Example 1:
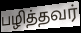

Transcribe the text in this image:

பழித்தவர்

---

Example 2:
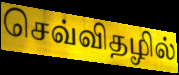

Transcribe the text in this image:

செவ்விதழில்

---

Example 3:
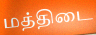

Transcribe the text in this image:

மத்திடை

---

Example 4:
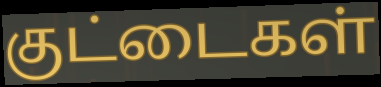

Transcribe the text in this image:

குட்டைகள்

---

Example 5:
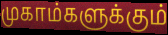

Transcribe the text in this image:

முகாம்களுக்கும்